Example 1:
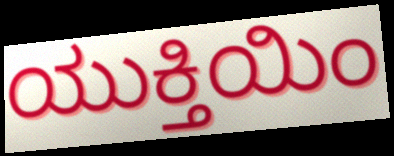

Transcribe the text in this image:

ಯುಕ್ತಿಯಿಂ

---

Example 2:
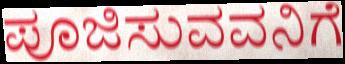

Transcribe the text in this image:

ಪೂಜಿಸುವವನಿಗೆ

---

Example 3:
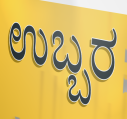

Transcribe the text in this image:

ಉಬ್ಬರ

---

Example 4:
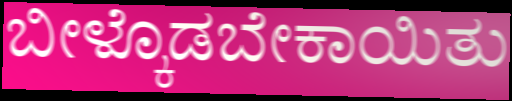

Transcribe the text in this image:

ಬೀಳ್ಕೊಡಬೇಕಾಯಿತು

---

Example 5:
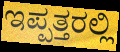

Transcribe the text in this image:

ಇಪ್ಪತ್ತರಲ್ಲಿ